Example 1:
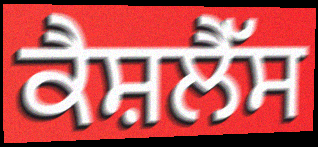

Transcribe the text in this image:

ਕੈਸ਼ਲੈੱਸ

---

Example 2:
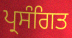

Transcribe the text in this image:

ਪ੍ਰਸੰਗਿਤ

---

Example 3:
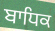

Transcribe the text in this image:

ਬਾਧਿਕ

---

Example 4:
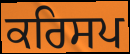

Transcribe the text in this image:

ਕਰਿਸਪ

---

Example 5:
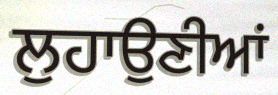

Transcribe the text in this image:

ਲੁਹਾਉਣੀਆਂ